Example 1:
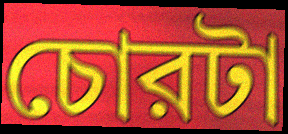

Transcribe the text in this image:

চোরটা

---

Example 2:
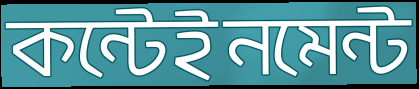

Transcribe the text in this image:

কন্টেইনমেন্ট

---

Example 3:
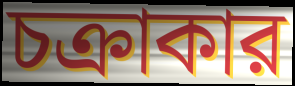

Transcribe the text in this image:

চক্রাকার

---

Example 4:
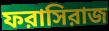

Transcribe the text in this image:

ফরাসিরাজ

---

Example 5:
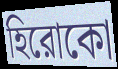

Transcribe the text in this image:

হিরোকো